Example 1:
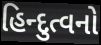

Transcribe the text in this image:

હિન્દુત્વનો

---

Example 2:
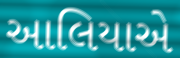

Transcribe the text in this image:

આલિયાએ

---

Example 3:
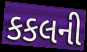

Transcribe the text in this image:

કકલની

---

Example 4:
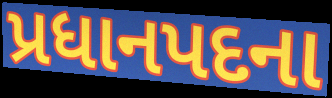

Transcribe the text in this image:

પ્રધાનપદના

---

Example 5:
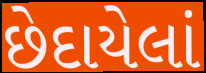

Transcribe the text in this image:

છેદાયેલાં